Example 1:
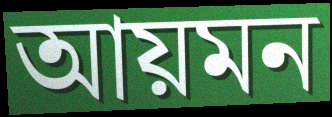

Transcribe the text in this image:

আয়মন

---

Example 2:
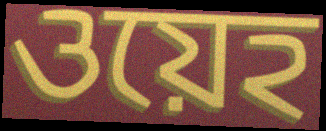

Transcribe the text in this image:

ওয়েহ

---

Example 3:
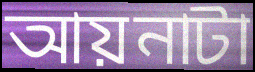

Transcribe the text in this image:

আয়নাটা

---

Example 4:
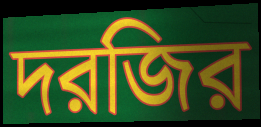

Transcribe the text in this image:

দরজির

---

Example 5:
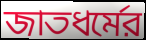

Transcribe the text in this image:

জাতধর্মের